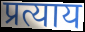
प्रत्याय